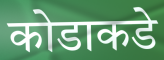
कोडाकडे